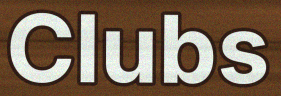
Clubs